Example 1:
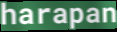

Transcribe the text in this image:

harapan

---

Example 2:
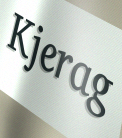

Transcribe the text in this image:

Kjerag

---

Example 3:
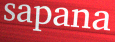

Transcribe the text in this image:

sapana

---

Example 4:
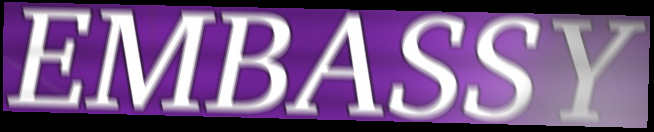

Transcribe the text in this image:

EMBASSY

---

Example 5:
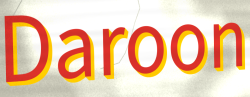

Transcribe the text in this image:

Daroon